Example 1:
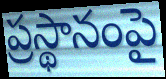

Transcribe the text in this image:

ప్రస్థానంపై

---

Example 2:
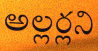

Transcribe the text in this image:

అల్లర్లని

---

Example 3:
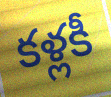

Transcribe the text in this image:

కళ్లకీ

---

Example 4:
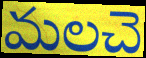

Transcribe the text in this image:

మలచె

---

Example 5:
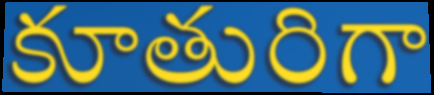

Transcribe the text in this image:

కూతురిగా